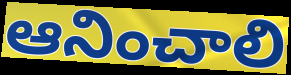
ఆనించాలి